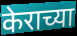
केराच्या